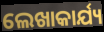
ଲେଖାକାର୍ଯ୍ୟ